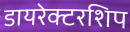
डायरेक्टरशिप